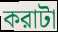
করাটা